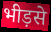
भीड़से